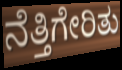
ನೆತ್ತಿಗೇರಿತು